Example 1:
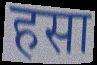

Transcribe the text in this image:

हसा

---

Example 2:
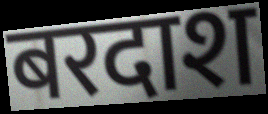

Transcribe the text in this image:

बरदाश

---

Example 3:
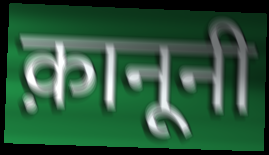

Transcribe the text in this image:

क़ानूनी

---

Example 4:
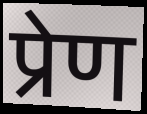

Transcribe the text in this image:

प्रेण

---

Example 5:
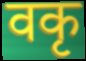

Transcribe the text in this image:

वकृ